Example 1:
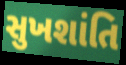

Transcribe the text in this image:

સુખશાંતિ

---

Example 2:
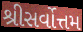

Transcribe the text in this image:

શ્રીસર્વોત્તમ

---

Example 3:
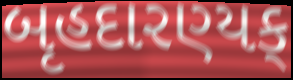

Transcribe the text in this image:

બૃહદારણ્યક્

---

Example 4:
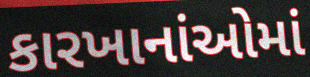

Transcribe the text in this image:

કારખાનાંઓમાં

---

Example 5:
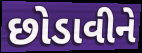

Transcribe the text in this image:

છોડાવીને